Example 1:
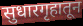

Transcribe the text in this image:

सुधारगृहातून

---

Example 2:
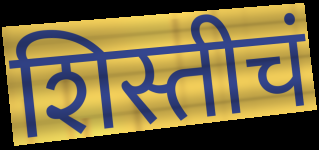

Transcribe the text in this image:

शिस्तीचं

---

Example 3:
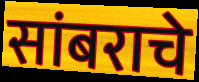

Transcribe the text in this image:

सांबराचे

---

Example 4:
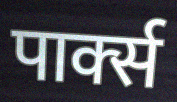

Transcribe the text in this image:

पार्क्‍स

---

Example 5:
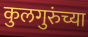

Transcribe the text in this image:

कुलगुरुंच्या